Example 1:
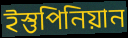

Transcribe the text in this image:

ইস্তুপিনিয়ান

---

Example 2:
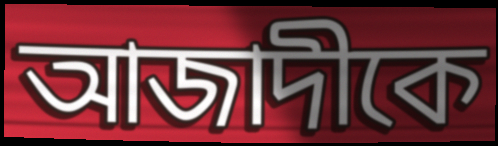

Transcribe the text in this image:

আজাদীকে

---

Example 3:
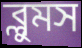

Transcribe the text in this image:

ব্লুমস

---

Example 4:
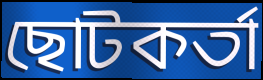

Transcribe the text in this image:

ছোটকর্তা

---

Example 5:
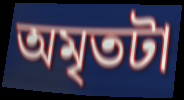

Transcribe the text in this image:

অমৃতটা